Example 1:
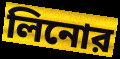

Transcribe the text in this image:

লিনোর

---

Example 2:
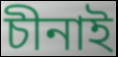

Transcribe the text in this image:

চীনাই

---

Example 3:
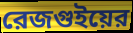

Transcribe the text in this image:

রেজগুইয়ের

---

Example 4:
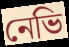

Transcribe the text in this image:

নেভি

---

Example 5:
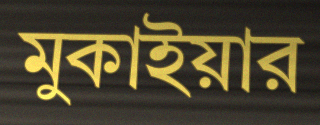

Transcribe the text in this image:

মুকাইয়ার